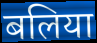
बलिया